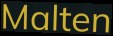
Malten